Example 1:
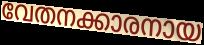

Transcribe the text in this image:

വേതനക്കാരനായ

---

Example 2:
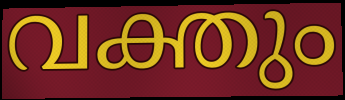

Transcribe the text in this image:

വക്തും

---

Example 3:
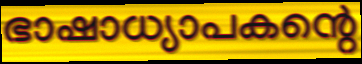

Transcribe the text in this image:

ഭാഷാധ്യാപകന്റെ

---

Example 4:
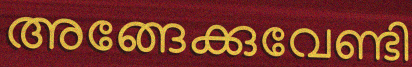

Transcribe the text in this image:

അങ്ങേക്കുവേണ്ടി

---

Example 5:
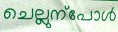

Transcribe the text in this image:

ചെല്ലുന്പോൾ